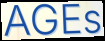
AGEs